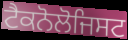
ਟੈਕਨੋਲੋਜਿਸਟ